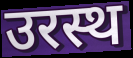
उरस्थ